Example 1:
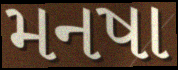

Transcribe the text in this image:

મનષા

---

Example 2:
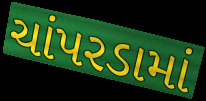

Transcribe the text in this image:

ચાંપરડામાં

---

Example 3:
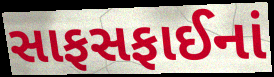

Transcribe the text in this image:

સાફસફાઈનાં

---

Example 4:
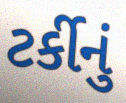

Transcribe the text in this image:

ટર્કીનું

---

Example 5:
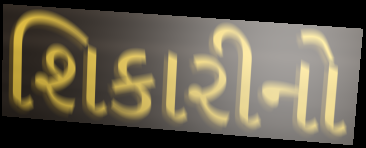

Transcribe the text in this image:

શિકારીનો